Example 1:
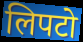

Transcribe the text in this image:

लिपटो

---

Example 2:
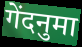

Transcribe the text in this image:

गेंदनुमा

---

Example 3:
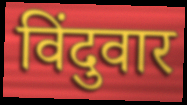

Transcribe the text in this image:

विंदुवार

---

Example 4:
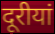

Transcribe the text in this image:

दूरीयां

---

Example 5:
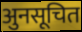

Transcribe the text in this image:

अुनसूचित